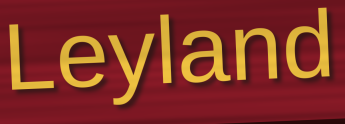
Leyland